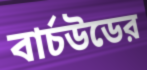
বার্চউডের